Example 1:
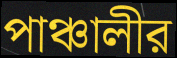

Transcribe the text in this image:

পাঞ্চালীর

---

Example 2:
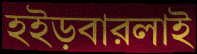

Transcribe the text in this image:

হইড়বারলাই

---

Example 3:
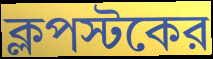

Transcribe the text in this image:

ক্লপস্টকের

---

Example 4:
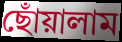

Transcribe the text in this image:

ছোঁয়ালাম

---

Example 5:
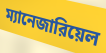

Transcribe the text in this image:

ম্যানেজারিয়েল